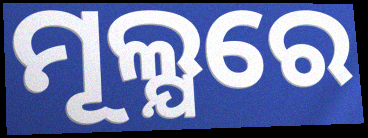
ମୂଲ୍ଯରେ